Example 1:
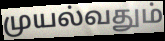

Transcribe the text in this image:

முயல்வதும்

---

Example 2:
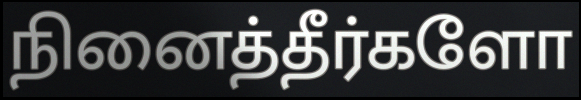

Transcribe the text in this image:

நினைத்தீர்களோ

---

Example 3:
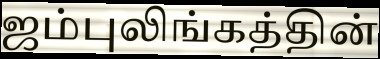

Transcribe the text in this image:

ஜம்புலிங்கத்தின்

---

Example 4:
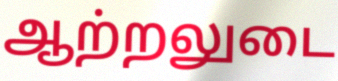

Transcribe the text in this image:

ஆற்றலுடை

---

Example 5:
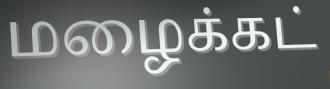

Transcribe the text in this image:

மழைக்கட்